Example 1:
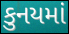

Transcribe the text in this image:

કુનયમાં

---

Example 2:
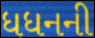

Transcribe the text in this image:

ધધનની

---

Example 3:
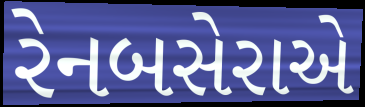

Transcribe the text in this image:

રેનબસેરાએ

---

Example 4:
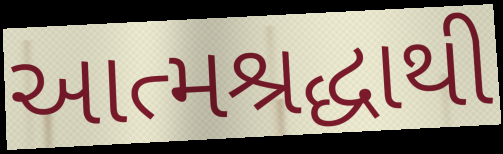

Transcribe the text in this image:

આત્મશ્રદ્ધાથી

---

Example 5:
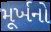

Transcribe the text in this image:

મૂર્ખનો